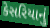
કેસરિયાનું